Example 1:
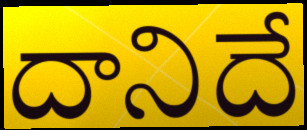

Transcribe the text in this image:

దానిదే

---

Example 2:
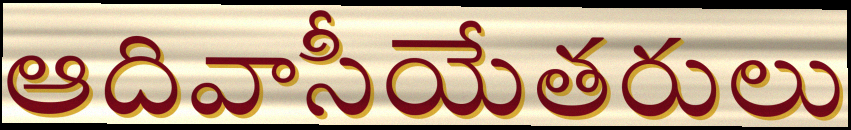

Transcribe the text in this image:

ఆదివాసీయేతరులు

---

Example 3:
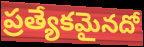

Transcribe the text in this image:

ప్రత్యేకమైనదో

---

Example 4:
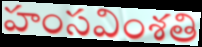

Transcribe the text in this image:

హంసవింశతి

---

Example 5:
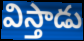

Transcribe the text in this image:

విస్తాడు